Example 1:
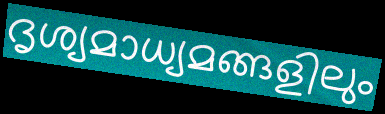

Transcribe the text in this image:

ദൃശ്യമാധ്യമങ്ങളിലും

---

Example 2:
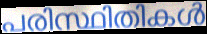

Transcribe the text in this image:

പരിസ്ഥിതികൾ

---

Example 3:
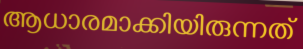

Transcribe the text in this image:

ആധാരമാക്കിയിരുന്നത്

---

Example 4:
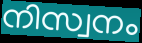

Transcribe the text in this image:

നിസ്വനം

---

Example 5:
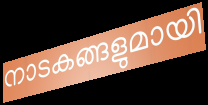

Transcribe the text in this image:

നാടകങ്ങളുമായി